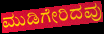
ಮುಡಿಗೇರಿದವು